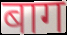
बाग